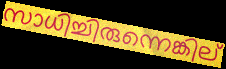
സാധിച്ചിരുന്നെങ്കില്